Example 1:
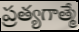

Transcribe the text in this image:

ప్రత్యగాత్మే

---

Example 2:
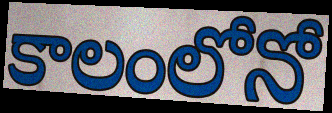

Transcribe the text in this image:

కాలంలోనో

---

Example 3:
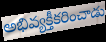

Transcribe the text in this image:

అభివ్యక్తీకరించాడు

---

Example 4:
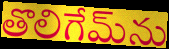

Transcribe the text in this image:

తొలిగేమ్‌ను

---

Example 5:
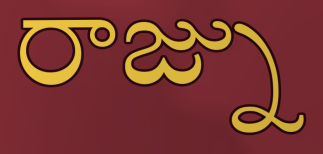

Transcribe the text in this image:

రాజ్ను